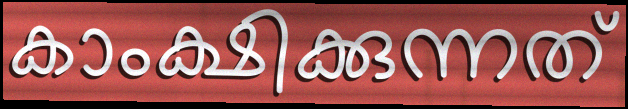
കാംക്ഷിക്കുന്നത്